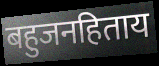
बहुजनहिताय